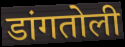
डांगतोली